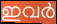
ഇവർ